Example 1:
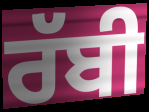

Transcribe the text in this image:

ਰੱਬੀ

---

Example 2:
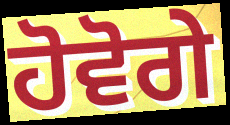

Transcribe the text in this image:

ਹੋਵੋਗੇ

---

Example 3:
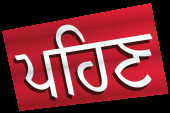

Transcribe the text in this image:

ਪਹਿਣ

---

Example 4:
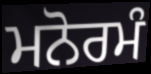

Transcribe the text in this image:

ਮਨੋਰਮੰ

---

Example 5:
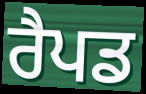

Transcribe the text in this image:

ਰੈਪਡ